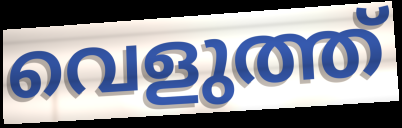
വെളുത്ത്